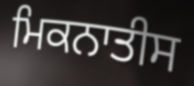
ਮਿਕਨਾਤੀਸ